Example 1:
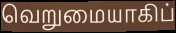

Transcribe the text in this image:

வெறுமையாகிப்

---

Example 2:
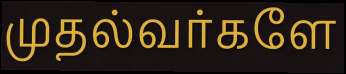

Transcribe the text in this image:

முதல்வர்களே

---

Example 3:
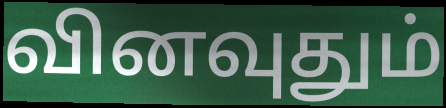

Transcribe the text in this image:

வினவுதும்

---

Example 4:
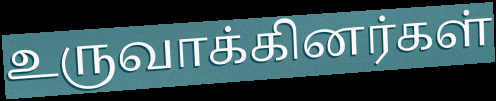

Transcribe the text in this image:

உருவாக்கினர்கள்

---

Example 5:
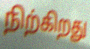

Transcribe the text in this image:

நிற்கிறது